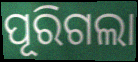
ପୂରିଗଲା